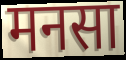
मनसा